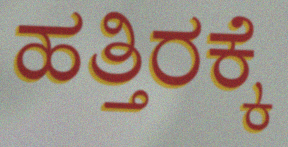
ಹತ್ತಿರಕ್ಕೆ